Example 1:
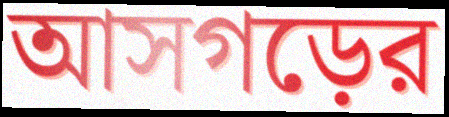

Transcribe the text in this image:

আসগড়ের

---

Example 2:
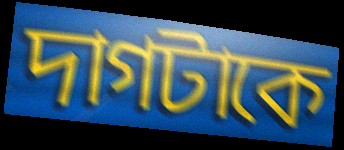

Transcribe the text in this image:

দাগটাকে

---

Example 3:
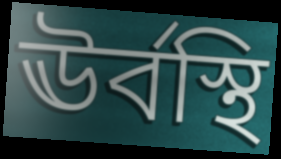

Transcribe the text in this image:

ঊর্বস্থি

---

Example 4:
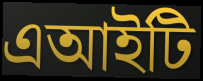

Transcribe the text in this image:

এআইটি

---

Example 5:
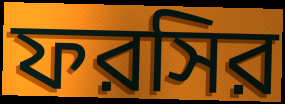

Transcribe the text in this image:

ফরসির